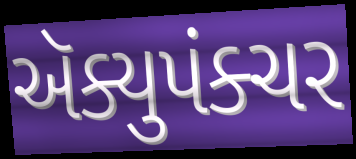
ઍક્યુપંક્ચર